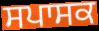
ਸਪਾਸਕ